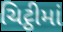
ચિટ્ઠીમાં